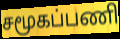
சமூகப்பணி